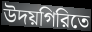
উদয়গিরিতে